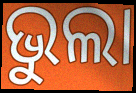
ଭୁଲା